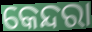
କେନ୍ଦରା